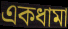
একধামা